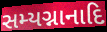
સમ્યગ્નાનાદિ